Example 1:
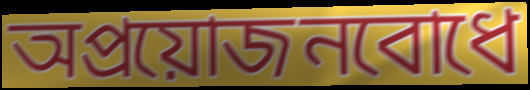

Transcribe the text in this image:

অপ্রয়োজনবোধে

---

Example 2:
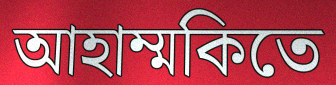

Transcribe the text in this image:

আহাম্মকিতে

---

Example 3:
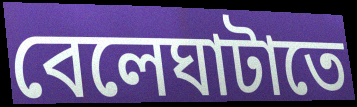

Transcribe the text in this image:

বেলেঘাটাতে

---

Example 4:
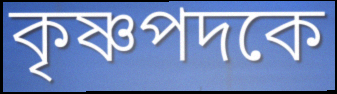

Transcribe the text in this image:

কৃষ্ণপদকে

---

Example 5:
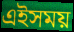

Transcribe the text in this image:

এইসময়